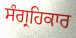
ਸੰਗ੍ਰਹਿਕਾਰ